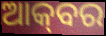
ଆକ୍‌ବର